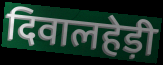
दिवालहेड़ी